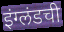
इंग्लंडची